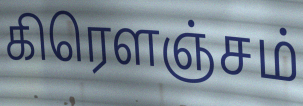
கிரௌஞ்சம்